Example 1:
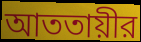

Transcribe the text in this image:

আততায়ীর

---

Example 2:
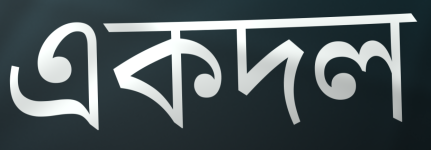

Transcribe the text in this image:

একদল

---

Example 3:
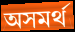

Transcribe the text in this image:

অসমর্থ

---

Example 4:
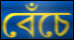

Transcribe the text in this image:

বেঁচে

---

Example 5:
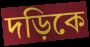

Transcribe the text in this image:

দড়িকে